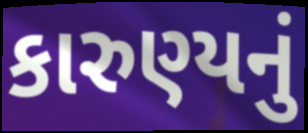
કારુણ્યનું